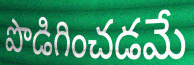
పొడిగించడమే